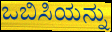
ಒಬಿಸಿಯನ್ನು